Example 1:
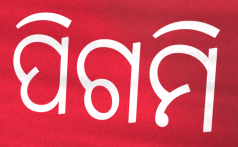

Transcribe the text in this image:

ପିଗମି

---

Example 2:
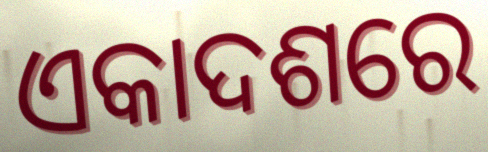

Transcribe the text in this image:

ଏକାଦଶରେ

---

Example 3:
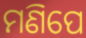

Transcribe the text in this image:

ମଣିପେ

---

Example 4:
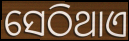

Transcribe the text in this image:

ସେଠିଥାଏ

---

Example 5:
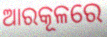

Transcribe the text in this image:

ଆରକୂଳରେ